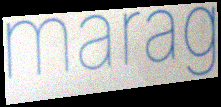
marag